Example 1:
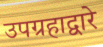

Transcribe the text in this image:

उपग्रहाद्वारे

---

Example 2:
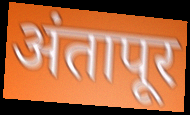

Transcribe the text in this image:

अंतापूर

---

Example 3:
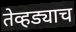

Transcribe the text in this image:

तेव्हड्याच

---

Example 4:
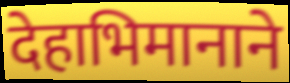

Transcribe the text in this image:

देहाभिमानाने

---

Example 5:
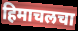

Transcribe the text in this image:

हिमाचलचा